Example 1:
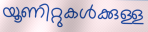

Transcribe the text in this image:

യൂണിറ്റുകൾക്കുള്ള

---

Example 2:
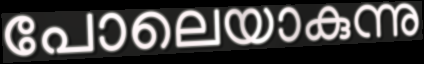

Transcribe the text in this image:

പോലെയാകുന്നു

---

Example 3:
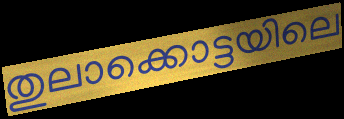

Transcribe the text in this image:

തുലാക്കൊട്ടയിലെ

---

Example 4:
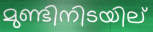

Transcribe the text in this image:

മുണ്ടിനിടയില്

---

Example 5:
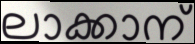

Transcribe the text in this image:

ലാക്കാന്